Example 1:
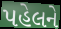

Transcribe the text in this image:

પહેલને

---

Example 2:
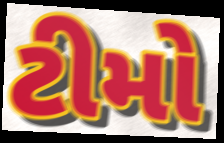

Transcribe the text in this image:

ટીમો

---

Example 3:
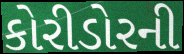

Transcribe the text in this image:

કોરીડોરની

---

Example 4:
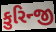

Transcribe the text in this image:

કુરિન્જી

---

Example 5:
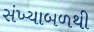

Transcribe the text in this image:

સંખ્યાબળથી